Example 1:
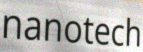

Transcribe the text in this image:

nanotech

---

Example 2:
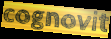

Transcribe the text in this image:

cognovit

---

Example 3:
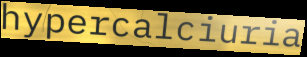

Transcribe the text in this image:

hypercalciuria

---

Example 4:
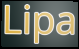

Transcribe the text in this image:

Lipa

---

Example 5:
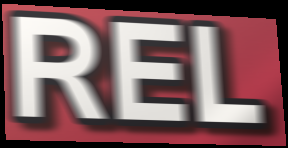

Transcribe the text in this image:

REL